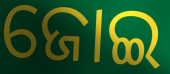
ଜୋଇ